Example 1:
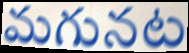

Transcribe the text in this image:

మగునట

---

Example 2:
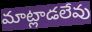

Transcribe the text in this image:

మాట్లాడలేవు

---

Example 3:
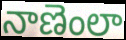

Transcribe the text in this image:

నాణెంలా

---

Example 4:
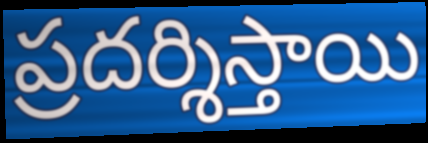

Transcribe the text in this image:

ప్రదర్శిస్తాయి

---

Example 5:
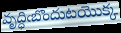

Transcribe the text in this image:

వృద్ధిఁబొందుటయొక్క